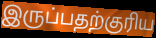
இருப்பதற்குரிய